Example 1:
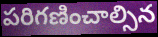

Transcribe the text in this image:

పరిగణించాల్సిన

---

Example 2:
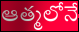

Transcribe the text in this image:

ఆత్మలోనే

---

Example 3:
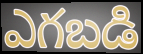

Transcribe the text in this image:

ఎగబడి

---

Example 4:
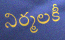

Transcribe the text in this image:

నిర్మలకీ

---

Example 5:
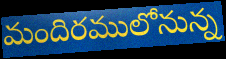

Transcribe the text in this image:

మందిరములోనున్న